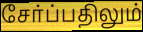
சேர்ப்பதிலும்